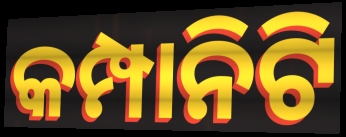
କମ୍ପାନିଟି